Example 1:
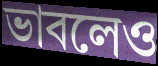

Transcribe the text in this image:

ভাবলেও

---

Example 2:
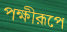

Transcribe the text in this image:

পক্ষীরূপে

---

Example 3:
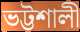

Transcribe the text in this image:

ভট্টশালী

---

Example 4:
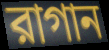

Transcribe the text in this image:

রাগান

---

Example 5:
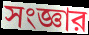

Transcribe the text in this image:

সংজ্ঞার